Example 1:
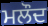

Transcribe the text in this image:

ਮਲੌਦ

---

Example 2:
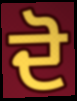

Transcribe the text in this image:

ਦੋ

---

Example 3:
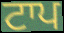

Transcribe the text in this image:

ਟਾਪ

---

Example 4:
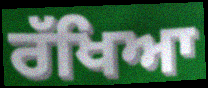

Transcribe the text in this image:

ਰੱਖਿਆ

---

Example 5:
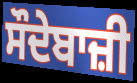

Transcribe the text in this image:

ਸੌਦੇਬਾਜ਼ੀ